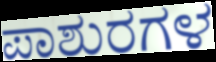
ಪಾಶುರಗಳ